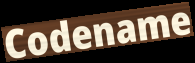
Codename